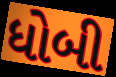
ધોબી